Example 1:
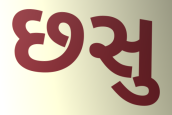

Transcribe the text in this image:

છસુ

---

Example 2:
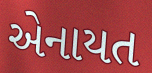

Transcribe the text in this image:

એનાયત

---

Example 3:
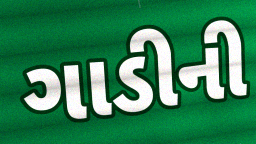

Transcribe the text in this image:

ગાડીની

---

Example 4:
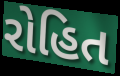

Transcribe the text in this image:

રોહિત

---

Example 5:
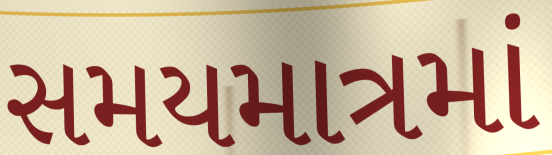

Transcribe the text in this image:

સમયમાત્રમાં